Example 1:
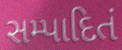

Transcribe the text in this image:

સમ્પાદિતં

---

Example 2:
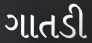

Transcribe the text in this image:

ગાતડી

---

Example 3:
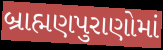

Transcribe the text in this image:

બ્રાહ્મણપુરાણોમાં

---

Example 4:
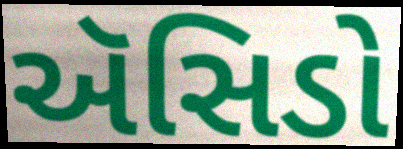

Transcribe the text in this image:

ઍસિડો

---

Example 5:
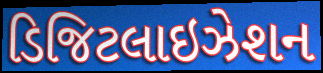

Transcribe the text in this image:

ડિજિટલાઇઝેશન